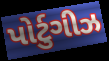
પોર્ટુગીઝ